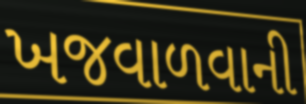
ખજવાળવાની